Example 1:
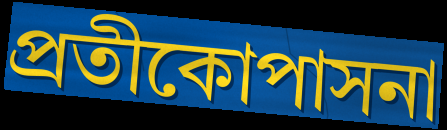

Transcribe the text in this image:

প্রতীকোপাসনা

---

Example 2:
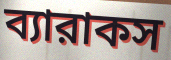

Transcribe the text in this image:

ব্যারাকস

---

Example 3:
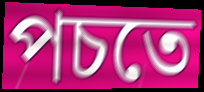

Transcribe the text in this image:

পচতে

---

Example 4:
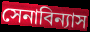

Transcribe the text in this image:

সেনাবিন্যাস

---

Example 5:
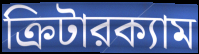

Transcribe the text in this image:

ক্রিটারক্যাম